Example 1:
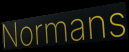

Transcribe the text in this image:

Normans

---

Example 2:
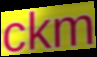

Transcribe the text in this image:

ckm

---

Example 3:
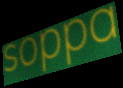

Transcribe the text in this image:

soppa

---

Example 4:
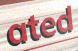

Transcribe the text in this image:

ated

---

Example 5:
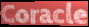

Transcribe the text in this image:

Coracle